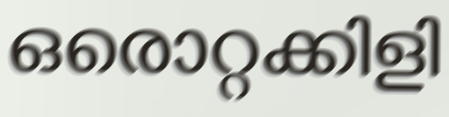
ഒരൊറ്റക്കിളി